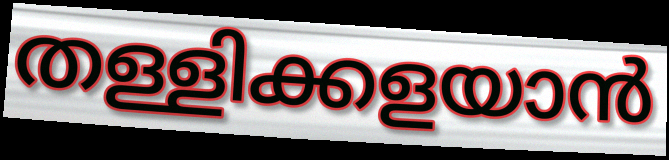
തള്ളിക്കളയാൻ